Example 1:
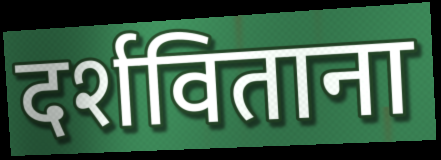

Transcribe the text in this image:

दर्शविताना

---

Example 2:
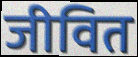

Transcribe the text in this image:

जीवित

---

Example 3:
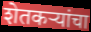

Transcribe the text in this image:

शेतकर्‍यांचा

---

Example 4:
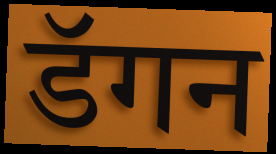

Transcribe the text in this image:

डॅगन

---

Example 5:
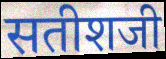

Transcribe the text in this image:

सतीशजी